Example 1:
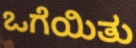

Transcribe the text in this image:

ಒಗೆಯಿತು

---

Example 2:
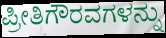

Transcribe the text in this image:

ಪ್ರೀತಿಗೌರವಗಳನ್ನು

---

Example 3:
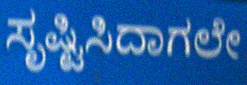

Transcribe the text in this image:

ಸೃಷ್ಟಿಸಿದಾಗಲೇ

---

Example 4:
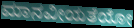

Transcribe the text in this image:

ಮಾನವೀಯತೆಯೋ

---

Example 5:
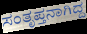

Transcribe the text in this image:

ಸಂತೃಪ್ತನಾಗಿದ್ದ